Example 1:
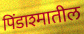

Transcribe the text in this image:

पिंडाश्मातील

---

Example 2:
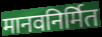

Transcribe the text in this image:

मानवनिर्मित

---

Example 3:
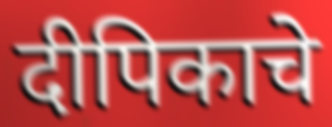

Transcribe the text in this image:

दीपिकाचे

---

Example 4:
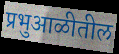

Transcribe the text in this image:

प्रभुआळीतील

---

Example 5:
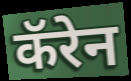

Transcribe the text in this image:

कॅरेन